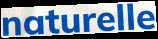
naturelle